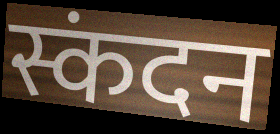
स्कंदन